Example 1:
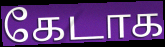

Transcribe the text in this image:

கேடாக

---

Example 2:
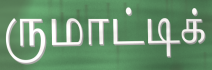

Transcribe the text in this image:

ருமாட்டிக்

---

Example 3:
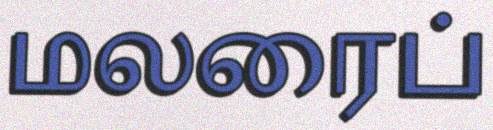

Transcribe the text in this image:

மலரைப்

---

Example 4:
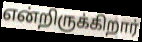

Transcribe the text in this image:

என்றிருக்கிறார்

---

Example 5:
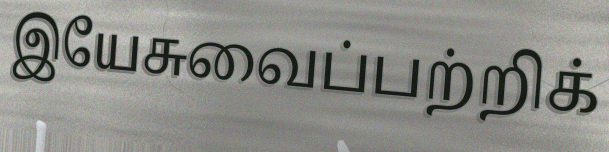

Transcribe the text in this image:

இயேசுவைப்பற்றிக்